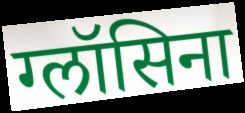
ग्लॉसिना